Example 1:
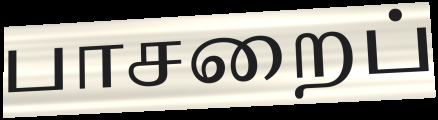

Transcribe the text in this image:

பாசறைப்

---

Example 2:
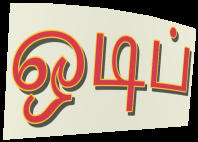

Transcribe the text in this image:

ஒடிப்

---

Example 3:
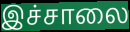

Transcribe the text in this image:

இச்சாலை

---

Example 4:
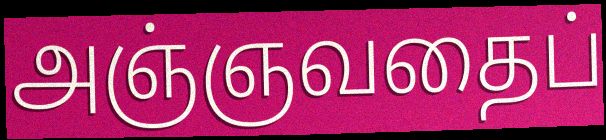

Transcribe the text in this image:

அஞ்ஞவதைப்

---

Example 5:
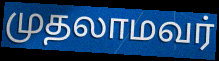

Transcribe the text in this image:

முதலாமவர்